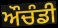
ਔਚੰਡੀ